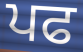
ਪਫ